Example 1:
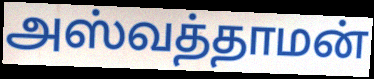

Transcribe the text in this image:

அஸ்வத்தாமன்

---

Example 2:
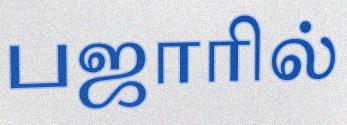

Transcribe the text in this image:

பஜாரில்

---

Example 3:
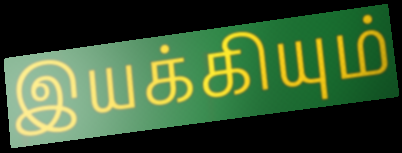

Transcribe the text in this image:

இயக்கியும்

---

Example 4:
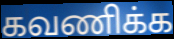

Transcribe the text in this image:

கவணிக்க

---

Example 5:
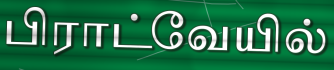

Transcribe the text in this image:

பிராட்வேயில்